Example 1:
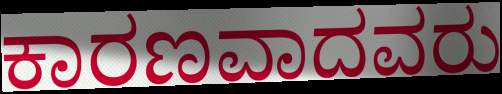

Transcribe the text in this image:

ಕಾರಣವಾದವರು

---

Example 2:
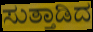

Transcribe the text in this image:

ಸುತ್ತಾಡಿದ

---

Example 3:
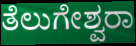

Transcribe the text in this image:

ತೆಲುಗೇಶ್ವರಾ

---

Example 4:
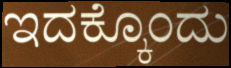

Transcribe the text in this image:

ಇದಕ್ಕೊಂದು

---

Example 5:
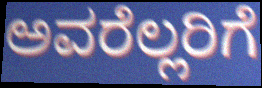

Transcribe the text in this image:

ಅವರೆಲ್ಲರಿಗೆ